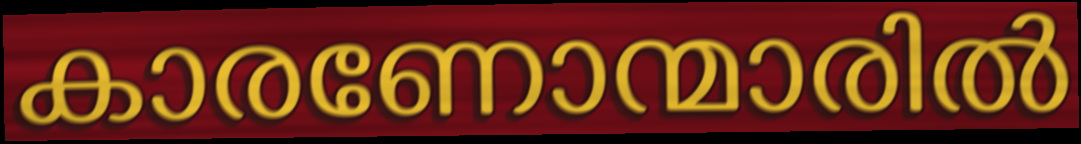
കാരണോന്മാരിൽ